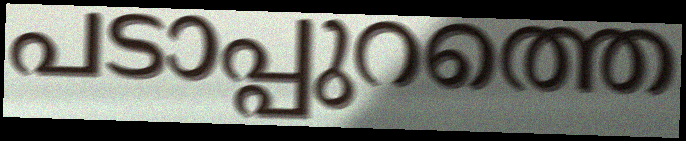
പടാപ്പുറത്തെ